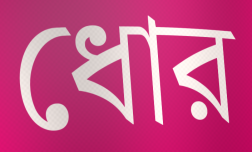
ধোর